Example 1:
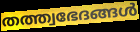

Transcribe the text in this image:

തത്ത്വഭേദങ്ങൾ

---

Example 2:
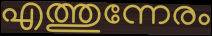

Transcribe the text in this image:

എത്തുന്നേരം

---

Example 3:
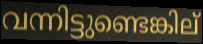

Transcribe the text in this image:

വന്നിട്ടുണ്ടെങ്കില്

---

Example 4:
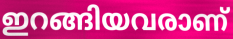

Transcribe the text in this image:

ഇറങ്ങിയവരാണ്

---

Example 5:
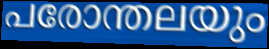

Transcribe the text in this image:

പരോന്തലയും